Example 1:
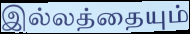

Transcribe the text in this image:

இல்லத்தையும்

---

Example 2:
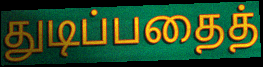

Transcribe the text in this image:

துடிப்பதைத்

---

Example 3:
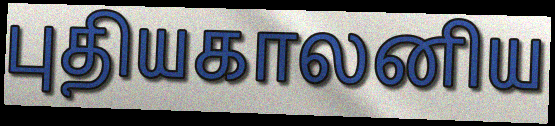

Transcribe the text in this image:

புதியகாலனிய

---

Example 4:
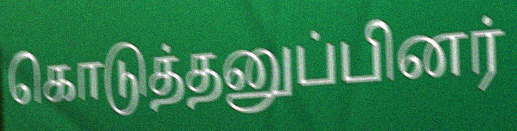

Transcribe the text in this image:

கொடுத்தனுப்பினர்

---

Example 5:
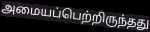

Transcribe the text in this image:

அமையப்பெற்றிருந்தது